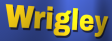
Wrigley